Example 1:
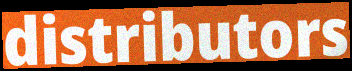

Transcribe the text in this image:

distributors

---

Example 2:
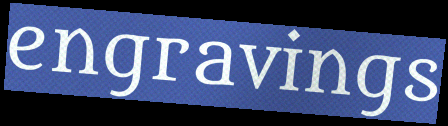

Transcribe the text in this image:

engravings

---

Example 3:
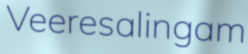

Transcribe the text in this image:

Veeresalingam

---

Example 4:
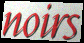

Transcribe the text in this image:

noirs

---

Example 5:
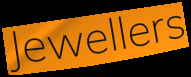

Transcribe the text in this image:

Jewellers